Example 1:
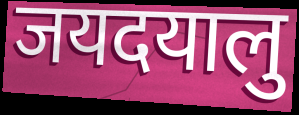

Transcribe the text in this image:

जयदयालु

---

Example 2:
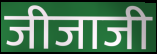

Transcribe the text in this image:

जीजाजी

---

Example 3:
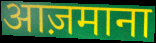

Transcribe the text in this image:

आज़माना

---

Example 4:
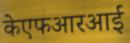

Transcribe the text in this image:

केएफआरआई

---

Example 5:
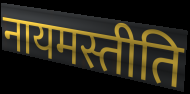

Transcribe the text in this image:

नायमस्तीति